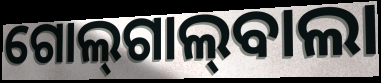
ଗୋଲ୍‍ଗାଲ୍‍ବାଲା